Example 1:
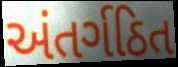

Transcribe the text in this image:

અંતર્ગઠિત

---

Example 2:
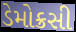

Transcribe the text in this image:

ડેમોક્રસી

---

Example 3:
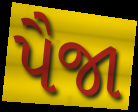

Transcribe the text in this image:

પૈજા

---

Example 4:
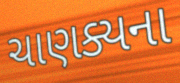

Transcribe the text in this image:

ચાણક્યના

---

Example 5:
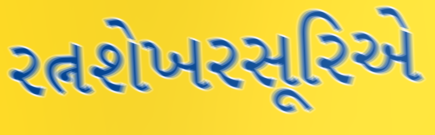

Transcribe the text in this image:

રત્નશેખરસૂરિએ